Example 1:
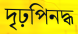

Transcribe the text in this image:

দৃঢ়পিনদ্ধ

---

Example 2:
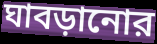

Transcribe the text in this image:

ঘাবড়ানোর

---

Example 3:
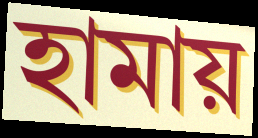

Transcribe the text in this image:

হামায়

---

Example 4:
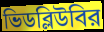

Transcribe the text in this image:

ভিডব্লিউবির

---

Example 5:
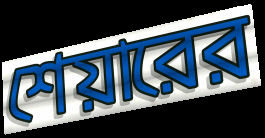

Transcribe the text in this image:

শেয়ারের